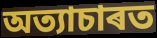
অত্যাচাৰত